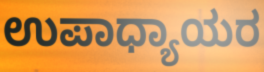
ಉಪಾಧ್ಯಾಯರ